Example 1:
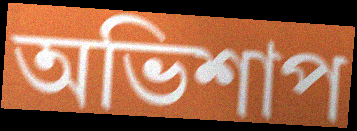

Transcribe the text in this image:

অভিশাপ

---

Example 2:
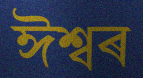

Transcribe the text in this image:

ঈশ্বৰ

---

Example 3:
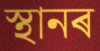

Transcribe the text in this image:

স্থানৰ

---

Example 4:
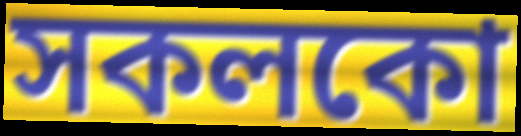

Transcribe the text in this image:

সকলকো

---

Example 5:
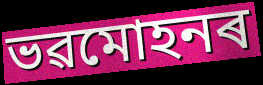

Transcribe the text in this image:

ভৱমোহনৰ